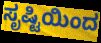
ಸೃಷ್ಟಿಯಿಂದ